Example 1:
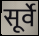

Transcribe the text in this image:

सूर्वे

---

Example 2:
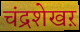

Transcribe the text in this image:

चंद्रशेखऱ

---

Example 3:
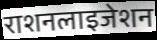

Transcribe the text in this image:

राशनलाइजेशन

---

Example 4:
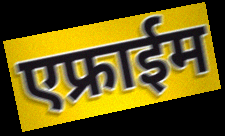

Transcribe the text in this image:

एफ्राईम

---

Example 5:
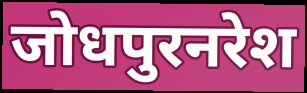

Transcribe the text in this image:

जोधपुरनरेश